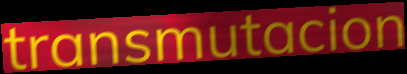
transmutacion